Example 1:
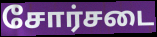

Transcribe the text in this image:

சோர்சடை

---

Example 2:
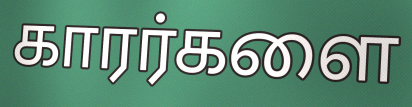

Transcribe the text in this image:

காரர்களை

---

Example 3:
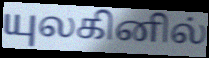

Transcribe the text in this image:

யுலகினில்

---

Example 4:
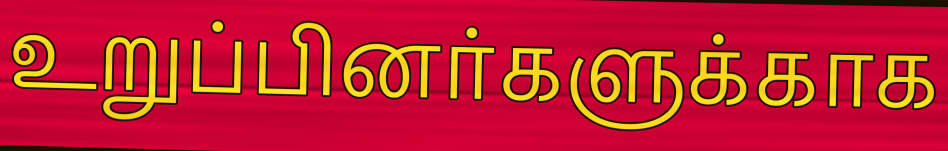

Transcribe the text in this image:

உறுப்பினர்களுக்காக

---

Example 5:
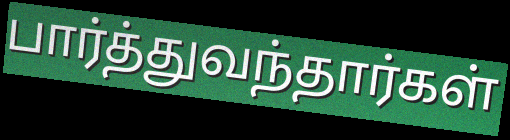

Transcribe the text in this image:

பார்த்துவந்தார்கள்